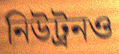
নিউট্রনও